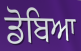
ਡੋਬਿਆ